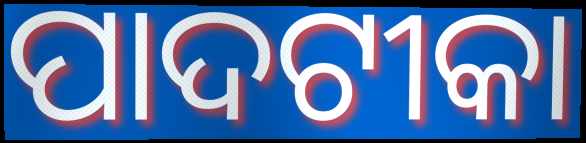
ପାଦଟୀକା